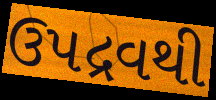
ઉપદ્રવથી